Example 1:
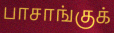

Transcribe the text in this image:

பாசாங்குக்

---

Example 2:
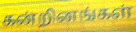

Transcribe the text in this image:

கன்றினங்கள்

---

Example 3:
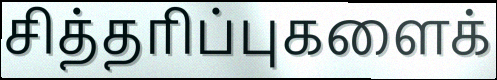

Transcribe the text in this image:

சித்தரிப்புகளைக்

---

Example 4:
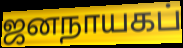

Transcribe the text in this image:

ஜனநாயகப்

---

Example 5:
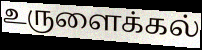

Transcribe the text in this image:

உருளைக்கல்